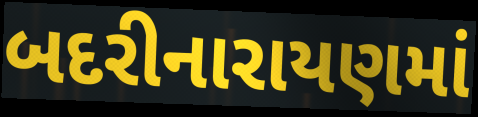
બદરીનારાયણમાં